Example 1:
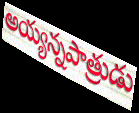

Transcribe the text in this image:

అయ్యన్నపాత్రుడు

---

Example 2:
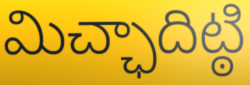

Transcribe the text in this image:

మిచ్ఛాదిట్ఠి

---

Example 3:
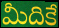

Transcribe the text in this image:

మీదికే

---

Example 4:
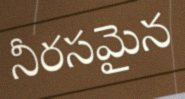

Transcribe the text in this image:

నీరసమైన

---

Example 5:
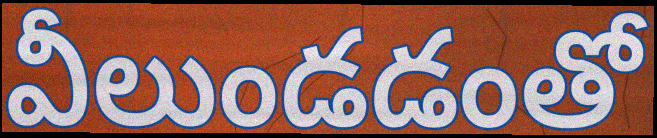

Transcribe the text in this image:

వీలుండడంతో